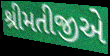
શ્રીમતીજીએ